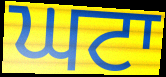
ਘਟਾ